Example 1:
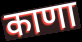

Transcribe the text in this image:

काणा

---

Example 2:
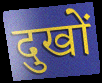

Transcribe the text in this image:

दुखों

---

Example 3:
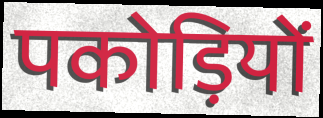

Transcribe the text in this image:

पकोड़ियों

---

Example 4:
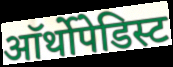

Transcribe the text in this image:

ऑर्थोपेडिस्ट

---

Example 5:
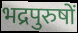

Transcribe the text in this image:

भद्रपुरुषों